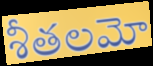
శీతలమో